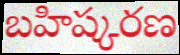
బహిష్కరణ